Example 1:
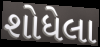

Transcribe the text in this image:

શોધેલા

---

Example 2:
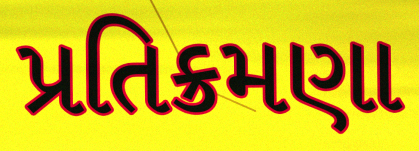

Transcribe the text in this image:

પ્રતિક્રમણા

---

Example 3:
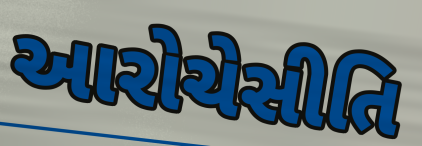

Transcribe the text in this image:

આરોચેસીતિ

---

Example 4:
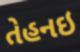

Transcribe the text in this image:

તેહનઇ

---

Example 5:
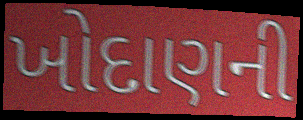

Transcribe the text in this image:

ખોદાણની